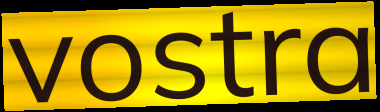
vostra